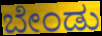
ಬೇಂಡು